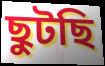
ছুটছি